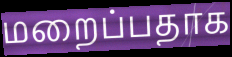
மறைப்பதாக